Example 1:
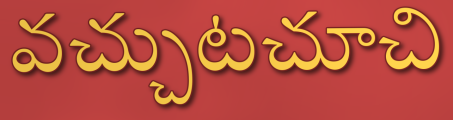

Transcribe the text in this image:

వచ్చుటచూచి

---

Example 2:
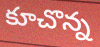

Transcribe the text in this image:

కూచొన్న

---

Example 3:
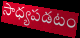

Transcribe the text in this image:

సాధ్యపడటం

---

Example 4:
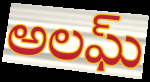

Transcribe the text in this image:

అలఘ్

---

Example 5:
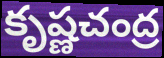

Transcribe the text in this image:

కృష్ణచంద్ర